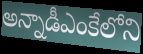
అన్నాడీఎంకేలోని